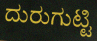
ದುರುಗುಟ್ಟಿ